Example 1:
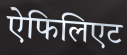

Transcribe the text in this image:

ऐफिलिएट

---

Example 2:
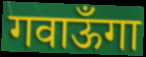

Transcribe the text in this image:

गवाऊँगा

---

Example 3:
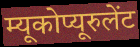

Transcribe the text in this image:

म्यूकोप्यूरुलेंट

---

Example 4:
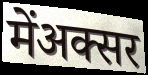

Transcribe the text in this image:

मेंअक्सर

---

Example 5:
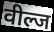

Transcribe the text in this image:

वील्ज